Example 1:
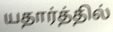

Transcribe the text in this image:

யதார்த்தில்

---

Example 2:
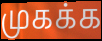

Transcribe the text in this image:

முகக்க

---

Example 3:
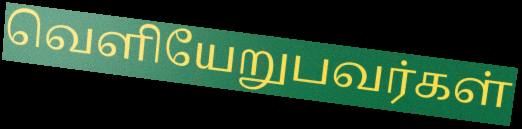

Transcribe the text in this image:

வெளியேறுபவர்கள்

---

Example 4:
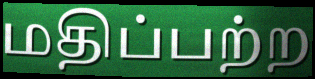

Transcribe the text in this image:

மதிப்பற்ற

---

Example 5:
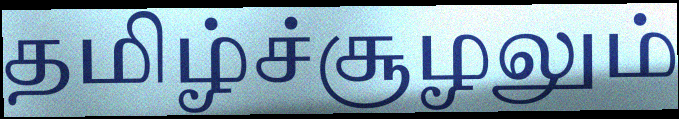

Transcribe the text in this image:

தமிழ்ச்சூழலும்